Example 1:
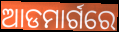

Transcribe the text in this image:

ଆଡମାର୍ଗରେ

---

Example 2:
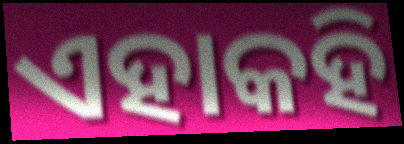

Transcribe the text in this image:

ଏହାକହି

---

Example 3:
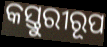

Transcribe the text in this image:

କସ୍ତୁରୀରୂପ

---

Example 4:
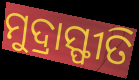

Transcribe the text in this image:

ମୁଦ୍ରାସ୍ଫୀତି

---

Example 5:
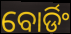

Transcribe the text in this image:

ବୋର୍ଡିଂ